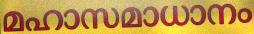
മഹാസമാധാനം